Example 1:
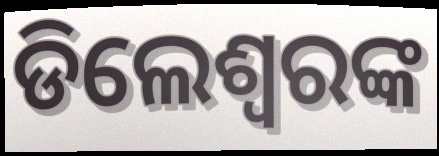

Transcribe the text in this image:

ଡିଲେଶ୍ଵରଙ୍କ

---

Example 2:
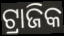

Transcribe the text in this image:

ଟ୍ରାଜିକ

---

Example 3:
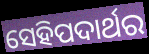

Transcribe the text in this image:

ସେହିପଦାର୍ଥର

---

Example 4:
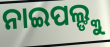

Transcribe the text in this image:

ନାଇପଲ୍ଙ୍କୁ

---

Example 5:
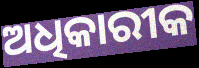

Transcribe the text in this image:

ଅଧିକାରୀକ